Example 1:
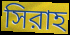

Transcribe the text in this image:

সিরাহ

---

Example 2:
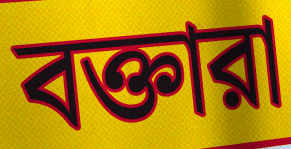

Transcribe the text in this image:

বক্তারা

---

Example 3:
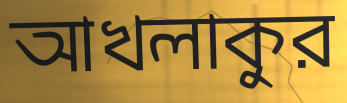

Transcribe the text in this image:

আখলাকুর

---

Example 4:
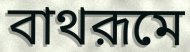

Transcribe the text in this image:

বাথরূমে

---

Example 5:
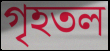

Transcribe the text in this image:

গৃহতল